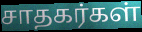
சாதகர்கள்